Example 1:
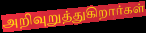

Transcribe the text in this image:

அறிவுறுத்துகிறார்கள்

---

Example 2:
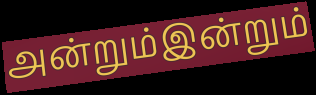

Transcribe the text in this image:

அன்றும்இன்றும்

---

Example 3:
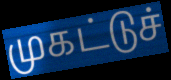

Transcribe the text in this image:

முகட்டுச்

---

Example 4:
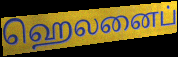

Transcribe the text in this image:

ஹெலனைப்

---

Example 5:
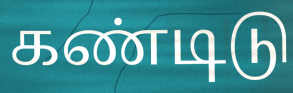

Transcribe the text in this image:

கண்டிடு